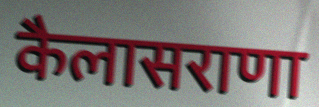
कैलासराणा